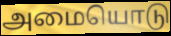
அமையொடு